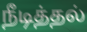
நீடித்தல்